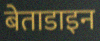
बेताडाइन